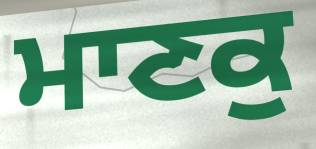
ਮਾਣਕੁ